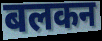
बलकन